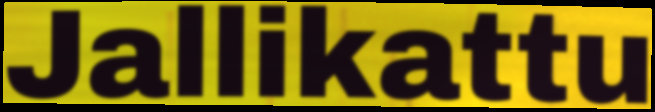
Jallikattu